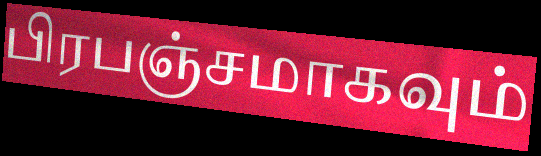
பிரபஞ்சமாகவும்